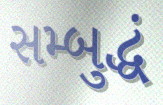
સમ્બુદ્ધં